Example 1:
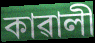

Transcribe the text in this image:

কাৱালী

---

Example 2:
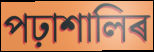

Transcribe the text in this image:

পঢ়াশালিৰ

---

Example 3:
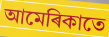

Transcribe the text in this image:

আমেৰিকাতে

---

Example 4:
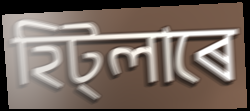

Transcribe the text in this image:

হিট্‌লাৰে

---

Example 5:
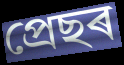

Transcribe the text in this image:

প্ৰেছৰ